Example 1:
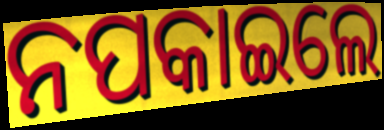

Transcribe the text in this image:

ନପକାଇଲେ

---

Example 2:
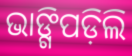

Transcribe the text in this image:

ଭାଙ୍ଗିପଡ଼ିଲି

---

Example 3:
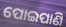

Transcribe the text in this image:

ପୋଇପାଣି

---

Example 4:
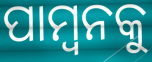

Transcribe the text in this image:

ପାମ୍ବନକୁ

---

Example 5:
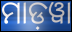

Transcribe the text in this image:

ମାଡ଼ୱା